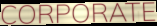
CORPORATE